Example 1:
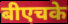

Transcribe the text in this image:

बीएचके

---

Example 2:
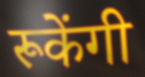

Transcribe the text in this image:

रूकेंगी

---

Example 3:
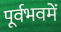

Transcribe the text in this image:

पूर्वभवमें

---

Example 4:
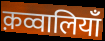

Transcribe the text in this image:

क़व्वालियाँ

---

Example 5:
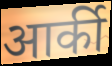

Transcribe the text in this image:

आर्की